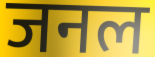
जनल